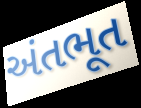
અંતભૂત